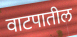
वाटपातील